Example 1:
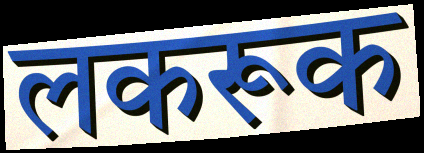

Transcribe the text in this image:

लकरूक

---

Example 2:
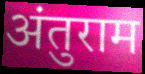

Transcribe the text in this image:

अंतुराम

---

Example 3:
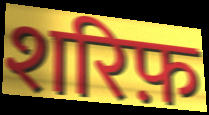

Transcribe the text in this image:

शरिफ़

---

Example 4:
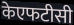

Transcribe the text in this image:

केएफटीसी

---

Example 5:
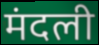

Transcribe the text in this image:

मंदली